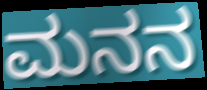
ಮನನ